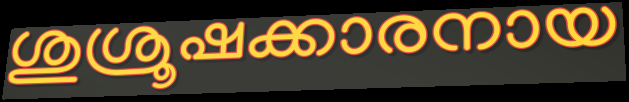
ശുശ്രൂഷക്കാരനായ